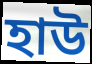
হাউ